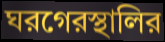
ঘরগেরস্থালির